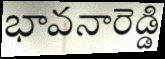
భావనారెడ్డి